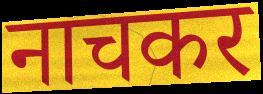
नाचकर